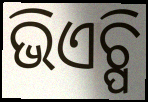
ଭିଏଚ୍ପି